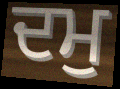
ਦਮੁ